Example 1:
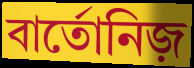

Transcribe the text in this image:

বার্তোনিজ়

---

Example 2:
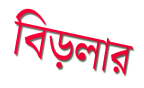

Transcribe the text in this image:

বিড়লার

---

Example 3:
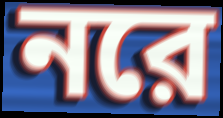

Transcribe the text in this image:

নরে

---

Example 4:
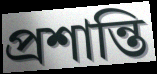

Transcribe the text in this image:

প্রশান্তি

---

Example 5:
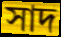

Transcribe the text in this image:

সাদ